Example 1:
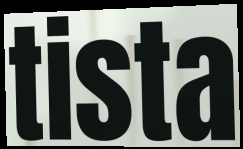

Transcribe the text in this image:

tista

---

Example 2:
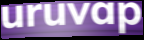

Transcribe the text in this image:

uruvap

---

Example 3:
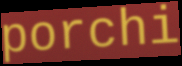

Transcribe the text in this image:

porchi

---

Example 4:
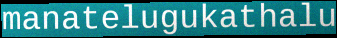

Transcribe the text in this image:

manatelugukathalu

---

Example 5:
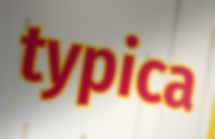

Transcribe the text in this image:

typica